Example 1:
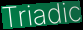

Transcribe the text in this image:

Triadic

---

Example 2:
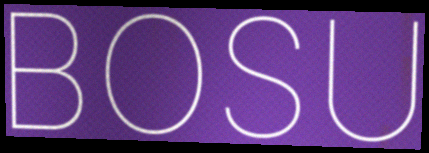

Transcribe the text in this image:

BOSU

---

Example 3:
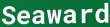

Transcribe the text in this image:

Seaward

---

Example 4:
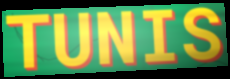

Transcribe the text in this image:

TUNIS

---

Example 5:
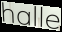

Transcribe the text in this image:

halle